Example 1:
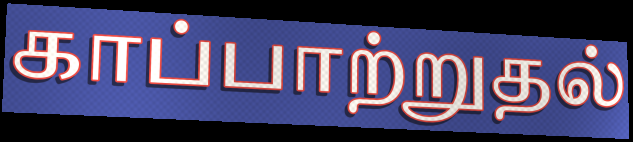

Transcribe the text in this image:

காப்பாற்றுதல்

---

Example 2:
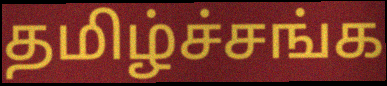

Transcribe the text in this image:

தமிழ்ச்சங்க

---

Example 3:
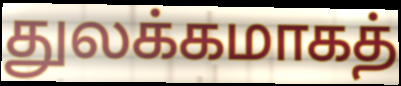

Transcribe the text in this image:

துலக்கமாகத்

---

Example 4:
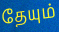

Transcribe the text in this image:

தேயும்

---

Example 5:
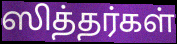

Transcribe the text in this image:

ஸித்தர்கள்